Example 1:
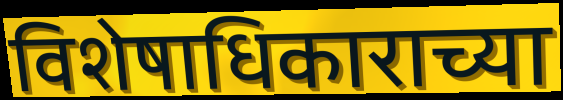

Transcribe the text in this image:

विशेषाधिकाराच्या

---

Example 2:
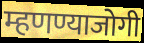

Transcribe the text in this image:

म्हणण्याजोगी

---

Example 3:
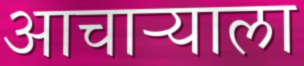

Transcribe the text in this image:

आचाऱ्याला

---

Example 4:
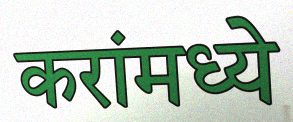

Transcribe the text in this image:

करांमध्ये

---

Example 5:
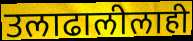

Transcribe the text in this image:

उलाढालीलाही